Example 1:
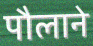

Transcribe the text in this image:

पौलाने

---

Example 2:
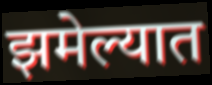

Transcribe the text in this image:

झमेल्यात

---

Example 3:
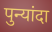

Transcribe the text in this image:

पुन्यांदा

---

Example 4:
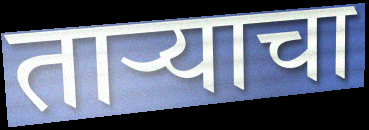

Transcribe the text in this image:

ताऱ्याचा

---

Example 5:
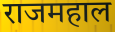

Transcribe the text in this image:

राजमहाल